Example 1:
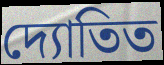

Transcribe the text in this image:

দ্যোতিত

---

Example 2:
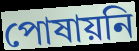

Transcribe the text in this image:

পোষায়নি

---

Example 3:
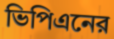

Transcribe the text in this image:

ভিপিএনের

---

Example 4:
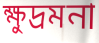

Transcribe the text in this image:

ক্ষুদ্রমনা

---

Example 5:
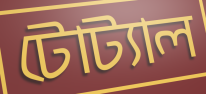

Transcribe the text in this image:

টোট্যাল